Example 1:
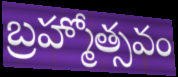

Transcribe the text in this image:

బ్రహ్మోత్సవం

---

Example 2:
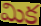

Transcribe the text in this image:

మిక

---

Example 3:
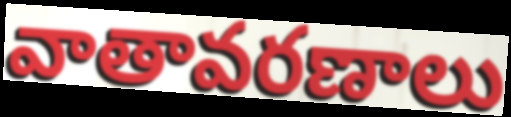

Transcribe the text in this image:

వాతావరణాలు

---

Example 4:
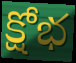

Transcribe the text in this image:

క్షోభ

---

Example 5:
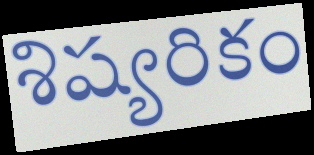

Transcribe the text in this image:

శిష్యరికం